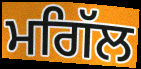
ਮਗਿੱਲ